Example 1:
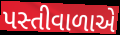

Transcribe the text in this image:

પસ્તીવાળાએ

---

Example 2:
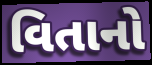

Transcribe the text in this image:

વિતાનો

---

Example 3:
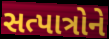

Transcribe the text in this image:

સત્પાત્રોને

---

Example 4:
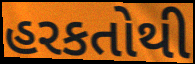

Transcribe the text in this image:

હરકતોથી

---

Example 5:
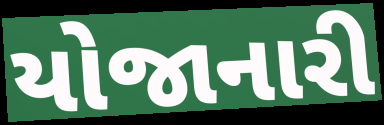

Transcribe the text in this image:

યોજાનારી